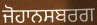
ਜੋਹਾਨਸਬਰਗ